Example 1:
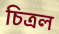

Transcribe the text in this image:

চিত্ৰল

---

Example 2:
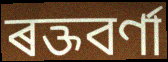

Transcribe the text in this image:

ৰক্তবৰ্ণা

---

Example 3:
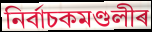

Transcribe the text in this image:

নিৰ্বাচকমণ্ডলীৰ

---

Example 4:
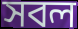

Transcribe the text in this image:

সবল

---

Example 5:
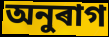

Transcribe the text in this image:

অনুৰাগ